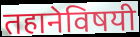
तहानेविषयी